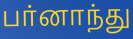
பர்னாந்து